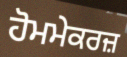
ਹੋਮਮੇਕਰਜ਼